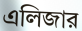
এলিজার